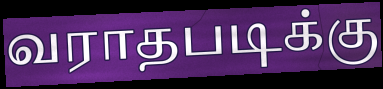
வராதபடிக்கு